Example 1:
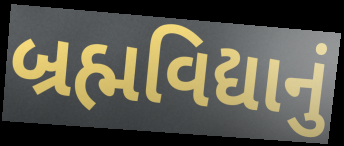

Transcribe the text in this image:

બ્રહ્મવિદ્યાનું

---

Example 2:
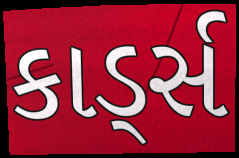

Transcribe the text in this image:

કાર્ડ્સ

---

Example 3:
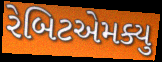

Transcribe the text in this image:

રેબિટએમક્યુ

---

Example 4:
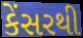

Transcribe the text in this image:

કેંસરથી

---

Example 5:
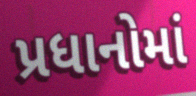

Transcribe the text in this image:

પ્રધાનોમાં